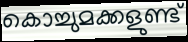
കൊച്ചുമക്കളുണ്ട്